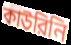
কাউরিনি